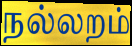
நல்லறம்